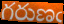
గరుణఁ